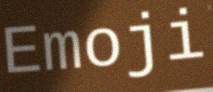
Emoji